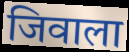
जिवाला